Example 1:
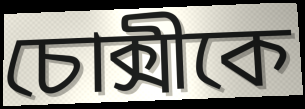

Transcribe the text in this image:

চোক্সীকে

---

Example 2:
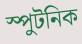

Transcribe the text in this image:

স্পুটনিক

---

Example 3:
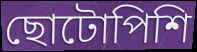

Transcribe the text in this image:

ছোটোপিশি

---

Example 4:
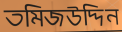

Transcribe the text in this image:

তমিজউদ্দিন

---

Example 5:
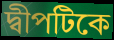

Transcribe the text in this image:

দ্বীপটিকে